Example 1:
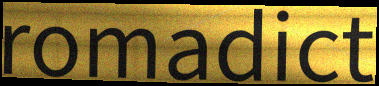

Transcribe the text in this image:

romadict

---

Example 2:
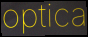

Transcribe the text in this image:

optica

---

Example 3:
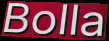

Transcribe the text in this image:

Bolla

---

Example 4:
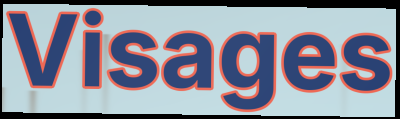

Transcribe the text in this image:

Visages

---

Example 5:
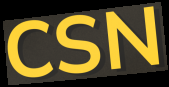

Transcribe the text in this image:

CSN